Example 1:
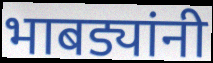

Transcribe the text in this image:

भाबड्यांनी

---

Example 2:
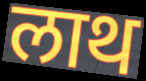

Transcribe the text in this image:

लाथ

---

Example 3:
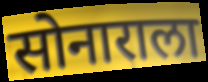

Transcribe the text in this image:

सोनाराला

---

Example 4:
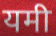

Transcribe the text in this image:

यमी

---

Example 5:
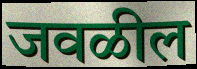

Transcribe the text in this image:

जवळील